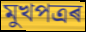
মুখপত্ৰৰ